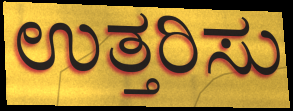
ಉತ್ತರಿಸು